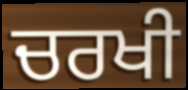
ਚਰਖੀ